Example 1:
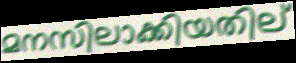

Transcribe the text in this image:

മനസിലാക്കിയതില്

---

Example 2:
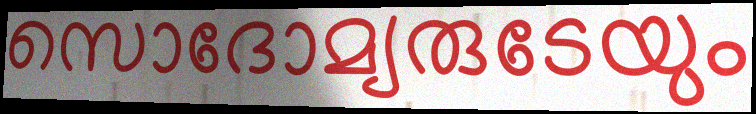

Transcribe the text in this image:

സൊദോമ്യരുടേയും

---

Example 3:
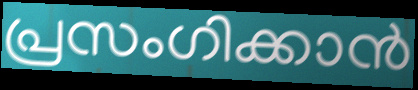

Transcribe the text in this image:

പ്രസംഗിക്കാൻ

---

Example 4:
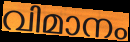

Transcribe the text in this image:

വിമാനം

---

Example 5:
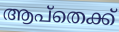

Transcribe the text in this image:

ആപ്തെക്ക്